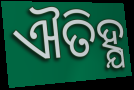
ଐତିହ୍ଯ